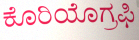
ಕೊರಿಯೊಗ್ರಫಿ